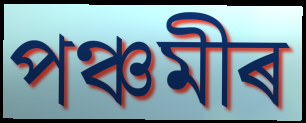
পঞ্চমীৰ